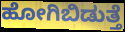
ಹೋಗಿಬಿಡುತ್ತೆ